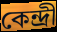
কেন্দ্রী